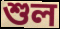
শুল